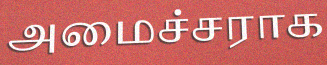
அமைச்சராக